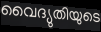
വൈദ്യുതിയുടെ